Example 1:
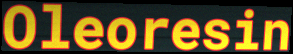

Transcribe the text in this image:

Oleoresin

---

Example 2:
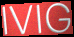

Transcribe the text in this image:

IVIG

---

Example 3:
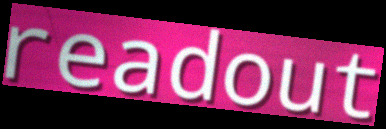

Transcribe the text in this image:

readout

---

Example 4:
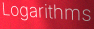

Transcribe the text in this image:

Logarithms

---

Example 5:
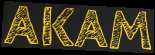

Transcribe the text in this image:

AKAM